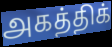
அகத்திக்